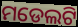
ମଡେଲଟି